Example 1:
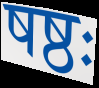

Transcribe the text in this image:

षष्ठः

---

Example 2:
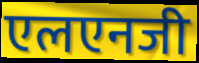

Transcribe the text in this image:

एलएनजी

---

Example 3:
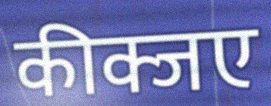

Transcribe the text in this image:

कीक्जए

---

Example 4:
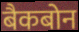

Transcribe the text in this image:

बैकबोन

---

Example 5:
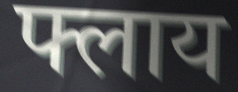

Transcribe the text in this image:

फ्लाय